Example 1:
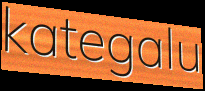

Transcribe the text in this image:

kategalu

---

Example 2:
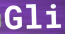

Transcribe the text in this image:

Gli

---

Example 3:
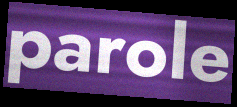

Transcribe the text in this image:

parole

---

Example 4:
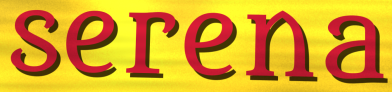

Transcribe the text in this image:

serena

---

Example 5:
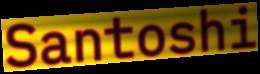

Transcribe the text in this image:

Santoshi